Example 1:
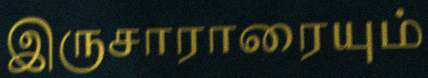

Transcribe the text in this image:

இருசாராரையும்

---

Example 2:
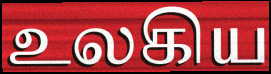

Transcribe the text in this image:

உலகிய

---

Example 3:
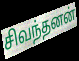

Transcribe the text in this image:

சிவந்தனன்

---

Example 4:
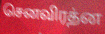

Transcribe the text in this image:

செனவிரத்ன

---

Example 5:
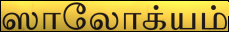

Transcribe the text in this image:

ஸாலோக்யம்